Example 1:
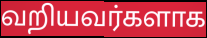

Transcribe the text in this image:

வறியவர்களாக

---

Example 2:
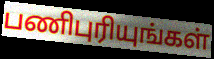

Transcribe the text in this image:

பணிபுரியுங்கள்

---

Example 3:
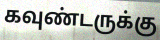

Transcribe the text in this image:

கவுண்டருக்கு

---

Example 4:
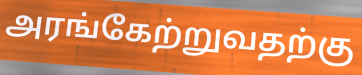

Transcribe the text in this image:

அரங்கேற்றுவதற்கு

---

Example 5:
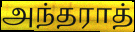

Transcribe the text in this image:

அந்தராத்